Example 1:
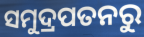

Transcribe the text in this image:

ସମୁଦ୍ରପତନରୁ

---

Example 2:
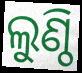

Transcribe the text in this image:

ଲୁଣ୍ଠି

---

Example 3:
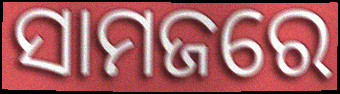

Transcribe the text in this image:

ସାମଜରେ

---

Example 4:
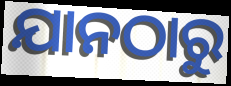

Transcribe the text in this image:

ଯାନଠାରୁ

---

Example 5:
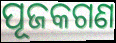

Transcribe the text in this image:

ପୂଜକଗଣ